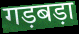
गड़बड़ा